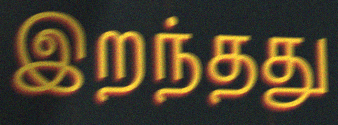
இறந்தது